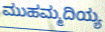
ಮುಹಮ್ಮದಿಯ್ಯ